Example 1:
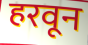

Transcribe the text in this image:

हरवून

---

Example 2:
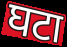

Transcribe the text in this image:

घटा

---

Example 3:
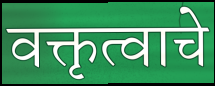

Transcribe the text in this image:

वक्तृत्वाचे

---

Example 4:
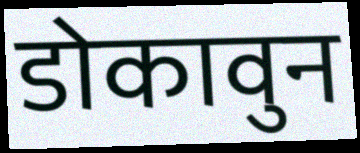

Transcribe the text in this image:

डोकावुन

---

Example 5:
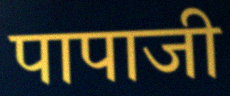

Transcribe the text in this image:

पापाजी